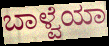
ಬಾಳ್ವೆಯಾ